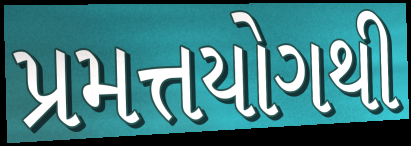
પ્રમત્તયોગથી